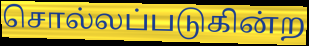
சொல்லப்படுகின்ற